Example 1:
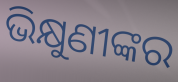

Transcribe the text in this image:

ଭିକ୍ଷୁଣୀଙ୍କର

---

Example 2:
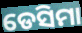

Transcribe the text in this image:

ଡେସିମା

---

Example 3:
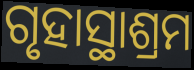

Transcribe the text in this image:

ଗୃହାସ୍ଥାଶ୍ରମ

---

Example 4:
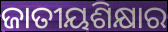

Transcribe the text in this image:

ଜାତୀୟଶିକ୍ଷାର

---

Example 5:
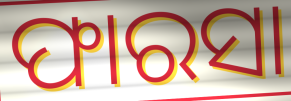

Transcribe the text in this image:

ଫାରସା